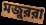
মজুররা